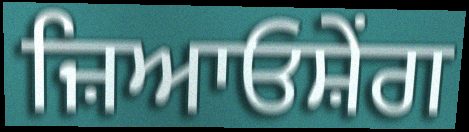
ਜ਼ਿਆਓਸ਼ੇਂਗ